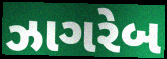
ઝાગરેબ